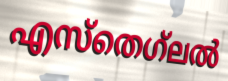
എസ്തെഗ്‌ലൽ